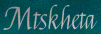
Mtskheta